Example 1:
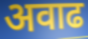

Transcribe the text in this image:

अवाढ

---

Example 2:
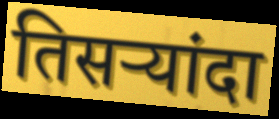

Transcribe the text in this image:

तिसऱ्यांदा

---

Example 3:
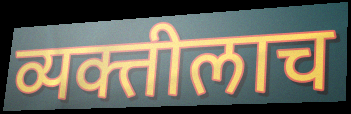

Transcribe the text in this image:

व्यक्तीलाच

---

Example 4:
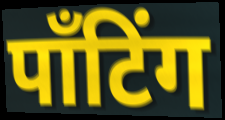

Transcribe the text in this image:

पाँटिंग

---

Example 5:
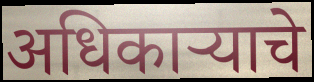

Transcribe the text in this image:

अधिकाऱ्याचे